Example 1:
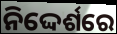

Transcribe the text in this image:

ନିଦ୍ଦେର୍ଶରେ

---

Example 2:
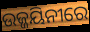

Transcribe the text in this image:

ଉଜ୍ଜୟିନୀରେ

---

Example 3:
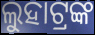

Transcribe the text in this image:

ଲୁହାଟ୍ରଙ୍କ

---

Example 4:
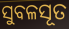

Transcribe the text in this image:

ସୁବଳସୂତ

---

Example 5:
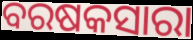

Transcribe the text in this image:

ବରଷକସାରା